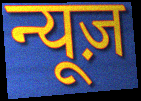
न्यूज़